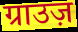
ग्राउज़